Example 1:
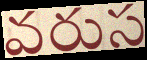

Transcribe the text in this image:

వరుస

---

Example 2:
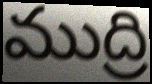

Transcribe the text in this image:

ముద్రి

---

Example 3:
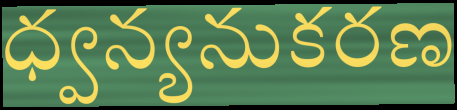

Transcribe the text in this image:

ధ్వన్యనుకరణ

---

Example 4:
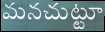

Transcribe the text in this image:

మనచుట్టూ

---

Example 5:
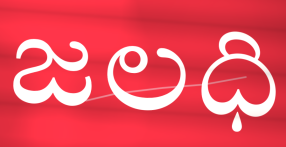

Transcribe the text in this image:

జలధి